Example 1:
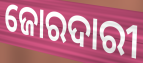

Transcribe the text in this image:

ଜୋରଦାରୀ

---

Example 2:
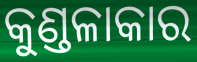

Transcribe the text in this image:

କୁଣ୍ଡଳାକାର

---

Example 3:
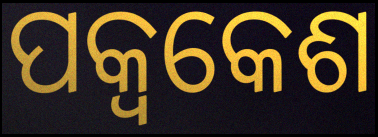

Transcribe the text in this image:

ପକ୍ଵକେଶ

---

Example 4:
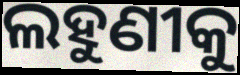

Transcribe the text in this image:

ଲହୁଣୀକୁ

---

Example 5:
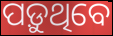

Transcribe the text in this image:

ପଡ଼ୁଥିବେ